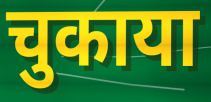
चुकाया